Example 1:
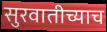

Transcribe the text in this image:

सुरवातीच्याच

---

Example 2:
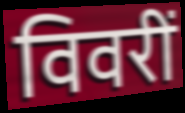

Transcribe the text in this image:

विवरीं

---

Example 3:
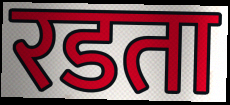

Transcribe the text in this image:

रडता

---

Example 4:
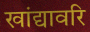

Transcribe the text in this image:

खांद्यावरि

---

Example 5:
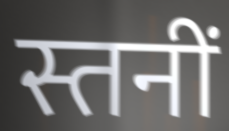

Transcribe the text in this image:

स्तनीं